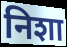
निशा